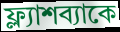
ফ্ল্যাশব্যাকে